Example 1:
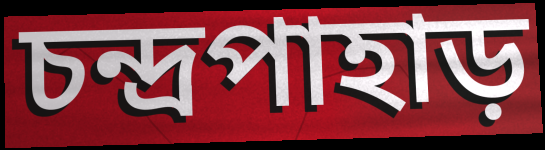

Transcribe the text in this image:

চন্দ্রপাহাড়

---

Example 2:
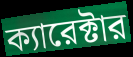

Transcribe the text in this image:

ক্যারেক্টার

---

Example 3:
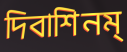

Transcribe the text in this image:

দিবাশিনম্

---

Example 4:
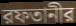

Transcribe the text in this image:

রফতানীর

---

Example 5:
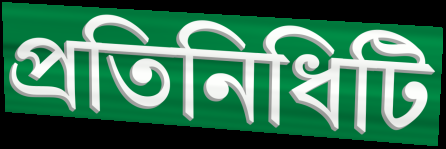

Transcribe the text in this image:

প্রতিনিধিটি